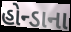
હોન્ડાના